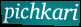
pichkari